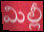
మిల్లీ